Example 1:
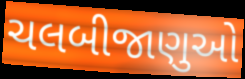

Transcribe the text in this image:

ચલબીજાણુઓ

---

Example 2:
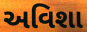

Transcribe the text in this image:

અવિશા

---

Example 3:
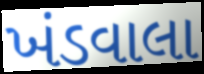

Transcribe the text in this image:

ખંડવાલા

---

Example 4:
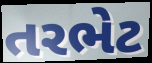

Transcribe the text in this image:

તરભેટ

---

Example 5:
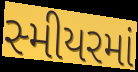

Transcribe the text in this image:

સ્મીયરમાં